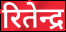
रितेन्द्र